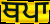
ਥਪਾ